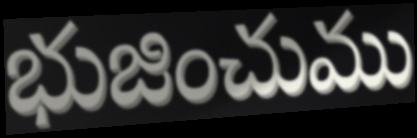
భుజించుము